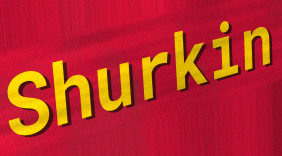
Shurkin